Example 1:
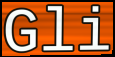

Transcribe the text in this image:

Gli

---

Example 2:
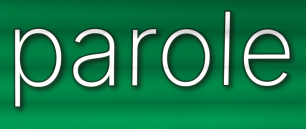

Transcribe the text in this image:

parole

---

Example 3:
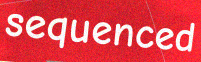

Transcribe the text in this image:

sequenced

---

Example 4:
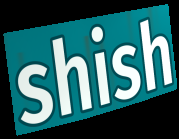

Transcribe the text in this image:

shish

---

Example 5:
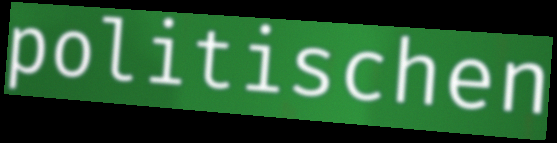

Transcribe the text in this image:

politischen